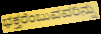
ಭಕ್ತರೆಂಬುವವರಿನ್ನು